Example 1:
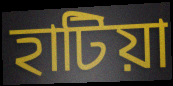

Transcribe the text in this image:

হাটিয়া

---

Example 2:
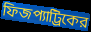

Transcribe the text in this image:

ফিজপ্যাট্রিকের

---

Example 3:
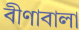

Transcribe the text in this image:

বীণাবালা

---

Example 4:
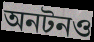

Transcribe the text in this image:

অনটনও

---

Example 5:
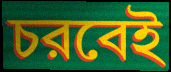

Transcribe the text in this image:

চরবেই